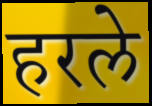
हरले